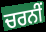
ਚਰਨੀਂ